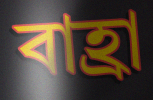
বাহ্রা